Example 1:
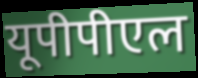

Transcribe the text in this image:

यूपीपीएल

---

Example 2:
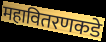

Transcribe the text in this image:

महावितरणकडे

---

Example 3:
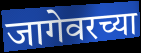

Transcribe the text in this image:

जागेवरच्या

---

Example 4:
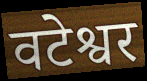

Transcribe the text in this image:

वटेश्वर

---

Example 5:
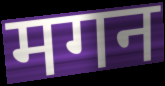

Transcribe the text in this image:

मगन